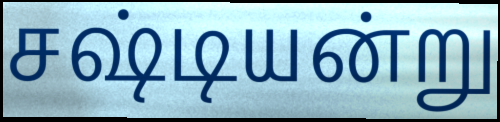
சஷ்டியன்று